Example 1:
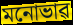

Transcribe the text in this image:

মনোভাৱ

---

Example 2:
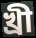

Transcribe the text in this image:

খ্ৰী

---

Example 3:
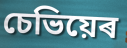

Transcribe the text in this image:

চেভিয়েৰ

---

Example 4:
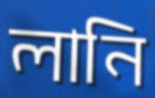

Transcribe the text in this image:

লানি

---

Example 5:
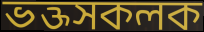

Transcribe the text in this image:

ভক্তসকলক